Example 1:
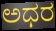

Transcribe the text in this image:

ಅಧರ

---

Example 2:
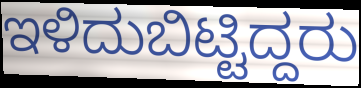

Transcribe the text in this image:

ಇಳಿದುಬಿಟ್ಟಿದ್ದರು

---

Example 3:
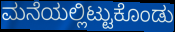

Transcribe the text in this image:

ಮನೆಯಲ್ಲಿಟ್ಟುಕೊಂಡು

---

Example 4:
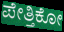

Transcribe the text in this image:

ಪೇತ್ತಿಕೋ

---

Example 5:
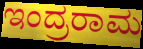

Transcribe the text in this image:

ಇಂದ್ರರಾಮ